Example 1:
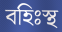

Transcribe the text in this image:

বহিঃস্থ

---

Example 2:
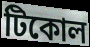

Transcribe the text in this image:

টিকোল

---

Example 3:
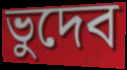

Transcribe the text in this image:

ভুদেব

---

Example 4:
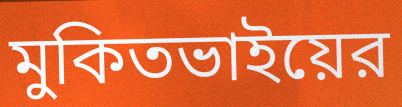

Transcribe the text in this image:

মুকিতভাইয়ের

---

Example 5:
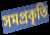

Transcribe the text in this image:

সমপ্রকৃতি